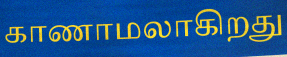
காணாமலாகிறது